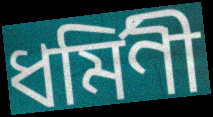
ধর্মিণী